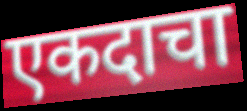
एकदाचा